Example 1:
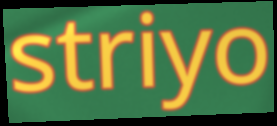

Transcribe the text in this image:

striyo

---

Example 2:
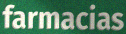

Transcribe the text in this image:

farmacias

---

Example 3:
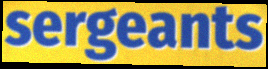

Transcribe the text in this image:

sergeants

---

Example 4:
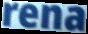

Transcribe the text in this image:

rena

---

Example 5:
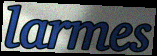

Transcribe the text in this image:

larmes